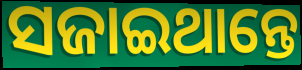
ସଜାଇଥାନ୍ତେ